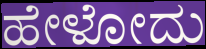
ಹೇಳೋದು